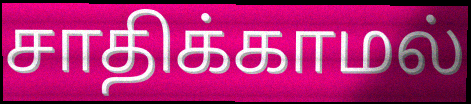
சாதிக்காமல்